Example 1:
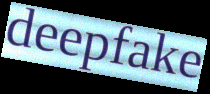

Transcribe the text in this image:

deepfake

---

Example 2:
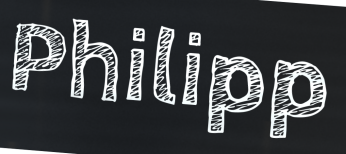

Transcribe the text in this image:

Philipp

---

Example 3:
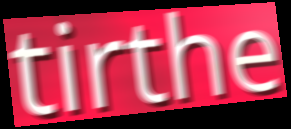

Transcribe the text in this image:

tirthe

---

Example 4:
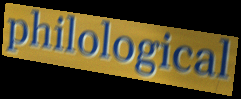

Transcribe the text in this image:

philological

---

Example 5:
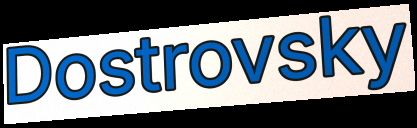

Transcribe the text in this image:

Dostrovsky